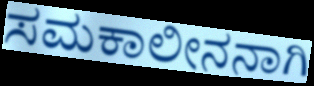
ಸಮಕಾಲೀನನಾಗಿ